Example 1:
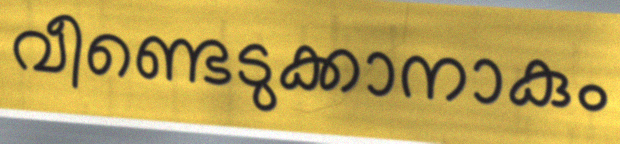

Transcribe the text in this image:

വീണ്ടെടുക്കാനാകും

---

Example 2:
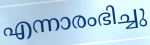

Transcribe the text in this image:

എന്നാരംഭിച്ചു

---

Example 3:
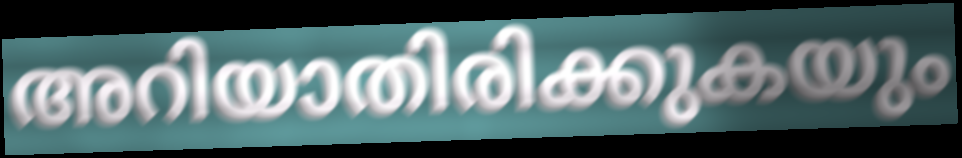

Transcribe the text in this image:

അറിയാതിരിക്കുകയും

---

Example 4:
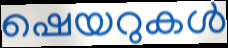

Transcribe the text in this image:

ഷെയറുകൾ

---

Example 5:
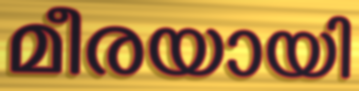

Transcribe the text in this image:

മീരയായി